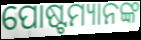
ପୋଷ୍ଟମ୍ୟାନଙ୍କ